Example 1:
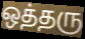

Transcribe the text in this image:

ஒத்தரு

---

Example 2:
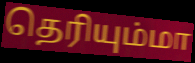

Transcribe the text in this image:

தெரியும்மா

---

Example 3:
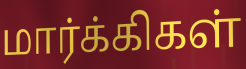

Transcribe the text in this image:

மார்க்கிகள்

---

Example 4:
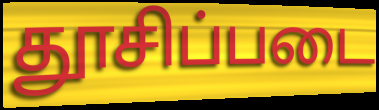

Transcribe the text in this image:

தூசிப்படை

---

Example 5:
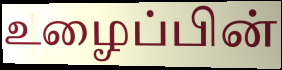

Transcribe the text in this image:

உழைப்பின்